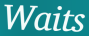
Waits